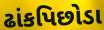
ઢાંકપિછોડા